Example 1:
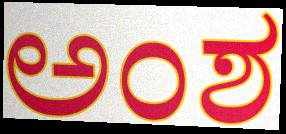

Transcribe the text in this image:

ಅಂಶ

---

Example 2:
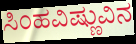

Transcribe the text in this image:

ಸಿಂಹವಿಷ್ಣುವಿನ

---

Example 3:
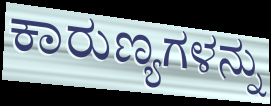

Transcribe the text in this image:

ಕಾರುಣ್ಯಗಳನ್ನು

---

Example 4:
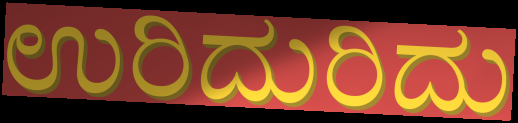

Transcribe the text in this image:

ಉರಿದುರಿದು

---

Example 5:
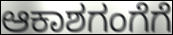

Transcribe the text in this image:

ಆಕಾಶಗಂಗೆಗೆ